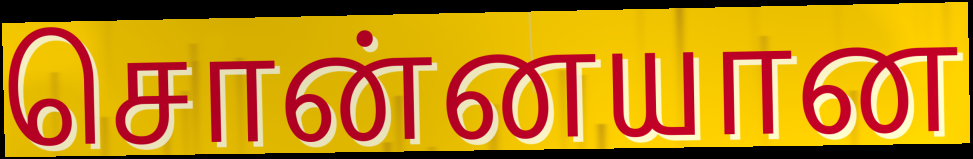
சொன்னயான